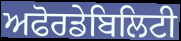
ਅਫੋਰਡੇਬਿਲਿਟੀ